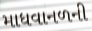
માધવાનળની